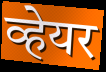
व्हेयर